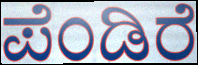
ಪೆಂಡಿರೆ